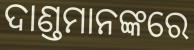
ଦାଣ୍ଡମାନଙ୍କରେ